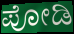
ಪೋಡಿ